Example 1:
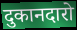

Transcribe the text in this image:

दुकानदारो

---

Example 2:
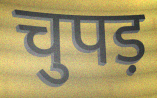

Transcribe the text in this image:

चुपड़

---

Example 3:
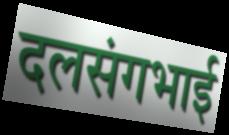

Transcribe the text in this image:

दलसंगभाई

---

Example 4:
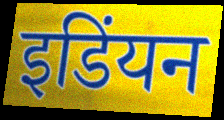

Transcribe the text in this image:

इडिंयन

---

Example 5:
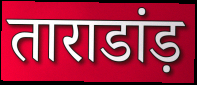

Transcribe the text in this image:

ताराडांड़